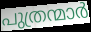
പുത്രന്മാർ